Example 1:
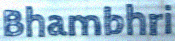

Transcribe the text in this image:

Bhambhri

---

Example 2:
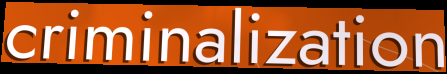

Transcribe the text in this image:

criminalization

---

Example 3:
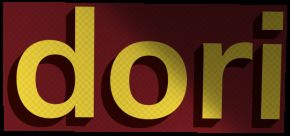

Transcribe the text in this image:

dori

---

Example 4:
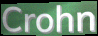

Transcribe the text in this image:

Crohn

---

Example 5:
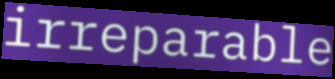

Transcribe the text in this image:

irreparable